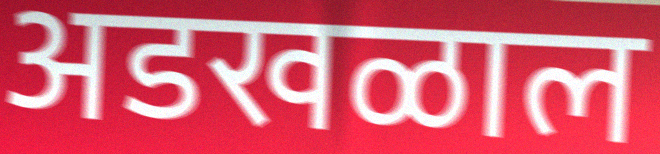
अडखळाल